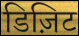
डिज़िट